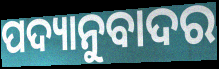
ପଦ୍ୟାନୁବାଦର